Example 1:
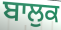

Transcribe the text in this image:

ਬਾਲੁਕ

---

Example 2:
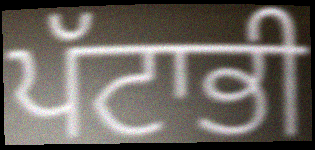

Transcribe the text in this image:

ਪੱਟਾਭੀ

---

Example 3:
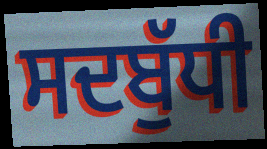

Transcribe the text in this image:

ਸਦਬੁੱਧੀ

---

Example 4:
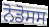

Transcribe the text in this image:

ਨੋਡੋਸਸ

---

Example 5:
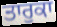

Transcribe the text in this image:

ਤਾਰੁਕਾ